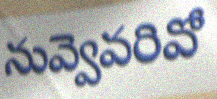
నువ్వెవరివో